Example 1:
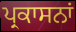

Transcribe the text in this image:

ਪ੍ਰਕਾਸਨਾਂ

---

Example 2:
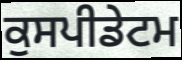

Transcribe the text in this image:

ਕੁਸਪੀਡੇਟਮ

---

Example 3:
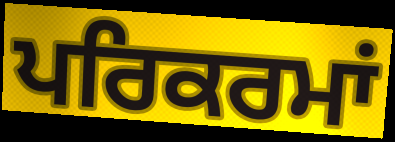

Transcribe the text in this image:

ਪਰਿਕਰਮਾਂ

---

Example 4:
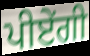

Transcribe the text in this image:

ਪੀਏਂਗੀ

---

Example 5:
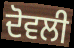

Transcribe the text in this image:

ਦੋਵਲੀ